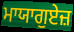
ਮਾਯਾਗੁਏਜ਼